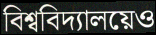
বিশ্ববিদ্যালয়েও